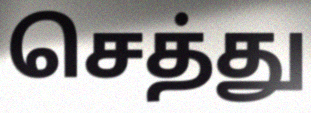
செத்து